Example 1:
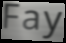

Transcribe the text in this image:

Fay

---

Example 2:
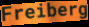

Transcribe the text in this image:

Freiberg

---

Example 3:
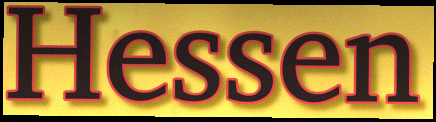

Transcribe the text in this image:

Hessen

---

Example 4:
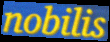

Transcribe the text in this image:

nobilis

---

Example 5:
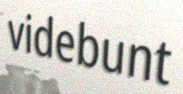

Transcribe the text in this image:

videbunt